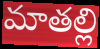
మాతల్లి